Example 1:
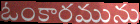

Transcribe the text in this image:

ఓంకారమును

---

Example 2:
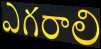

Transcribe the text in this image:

ఎగరాలి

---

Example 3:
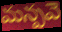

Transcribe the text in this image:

మన్పవె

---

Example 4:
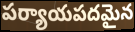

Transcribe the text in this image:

పర్యాయపదమైన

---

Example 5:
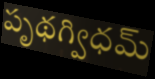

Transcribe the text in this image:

పృథగ్విధమ్